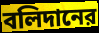
বলিদানের